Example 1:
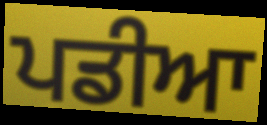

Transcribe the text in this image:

ਪਡੀਆ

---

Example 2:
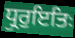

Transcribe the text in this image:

ਧ੍ਰੁਰੁਇਤਿਃ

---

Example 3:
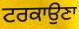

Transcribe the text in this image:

ਟਰਕਾਉਣਾ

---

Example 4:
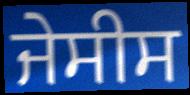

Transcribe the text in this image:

ਜੇਸੀਸ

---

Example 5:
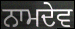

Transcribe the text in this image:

ਨਾਮਦੇਵ